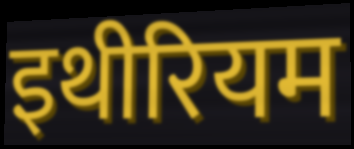
इथीरियम